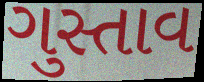
ગુસ્તાવ